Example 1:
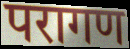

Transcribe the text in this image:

परागण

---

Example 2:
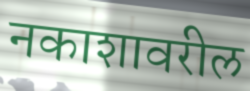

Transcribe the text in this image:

नकाशावरील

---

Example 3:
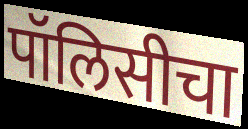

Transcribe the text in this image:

पॉलिसीचा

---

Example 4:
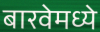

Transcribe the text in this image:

बारवेमध्ये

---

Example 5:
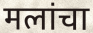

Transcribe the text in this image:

मलांचा